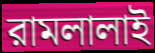
রামলালাই